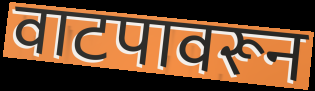
वाटपावरून